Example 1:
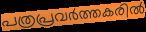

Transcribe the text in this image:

പത്രപ്രവർത്തകരിൽ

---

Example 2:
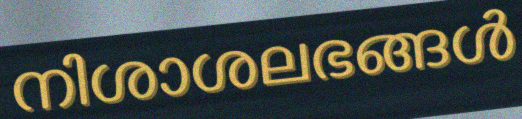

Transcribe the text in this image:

നിശാശലഭങ്ങൾ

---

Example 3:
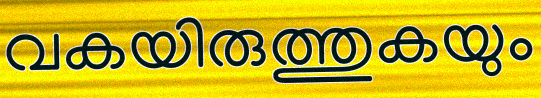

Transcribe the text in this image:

വകയിരുത്തുകയും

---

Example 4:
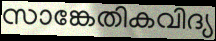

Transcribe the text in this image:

സാങ്കേതികവിദ്യ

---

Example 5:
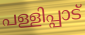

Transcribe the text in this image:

പള്ളിപ്പാട്